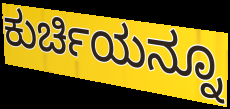
ಕುರ್ಚಿಯನ್ನೂ